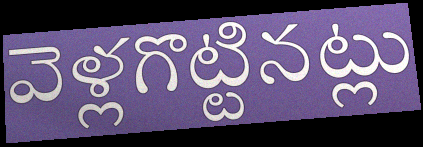
వెళ్లగొట్టినట్లు